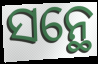
ସନ୍ଥେ